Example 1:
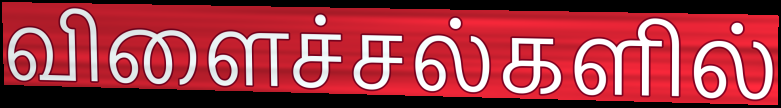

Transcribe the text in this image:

விளைச்சல்களில்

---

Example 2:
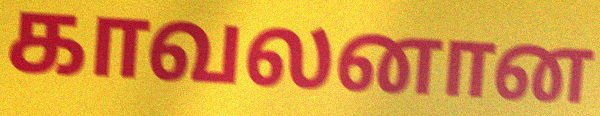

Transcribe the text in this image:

காவலனான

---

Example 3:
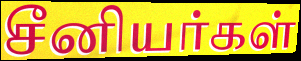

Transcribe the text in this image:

சீனியர்கள்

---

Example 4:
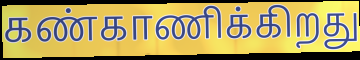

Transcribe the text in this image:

கண்காணிக்கிறது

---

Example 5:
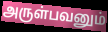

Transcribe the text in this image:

அருள்பவனும்